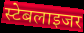
स्टेबलाइजर